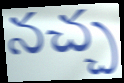
నచ్చ